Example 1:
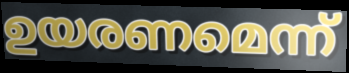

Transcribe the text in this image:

ഉയരണമെന്ന്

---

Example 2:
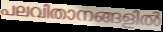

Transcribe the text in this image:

പലവിതാനങ്ങളിൽ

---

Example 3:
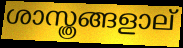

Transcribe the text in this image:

ശാസ്ത്രങ്ങളാല്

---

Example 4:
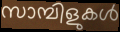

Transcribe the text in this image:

സാമ്പിളുകൾ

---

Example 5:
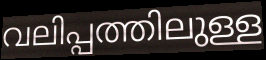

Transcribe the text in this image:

വലിപ്പത്തിലുള്ള